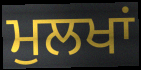
ਮੁਲਖਾਂ